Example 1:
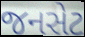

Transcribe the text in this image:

જનસેટ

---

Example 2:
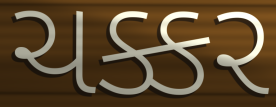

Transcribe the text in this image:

ચક્કર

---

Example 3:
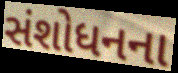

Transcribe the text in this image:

સંશોધનના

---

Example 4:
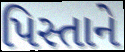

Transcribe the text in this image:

પિસ્તાને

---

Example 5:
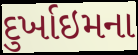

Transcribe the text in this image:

દુર્ખાઇમના